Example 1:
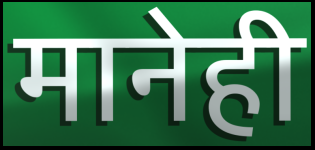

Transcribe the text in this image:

मानेही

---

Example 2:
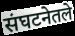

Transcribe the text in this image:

संघटनेतले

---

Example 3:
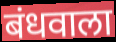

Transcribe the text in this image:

बंधवाला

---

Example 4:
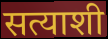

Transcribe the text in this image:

सत्याशी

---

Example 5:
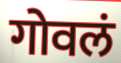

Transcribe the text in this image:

गोवलं